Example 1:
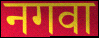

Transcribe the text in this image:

नगवा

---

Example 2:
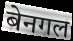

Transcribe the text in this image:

बेनगल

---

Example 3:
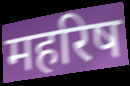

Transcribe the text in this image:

महरिष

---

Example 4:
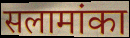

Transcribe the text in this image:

सलामांका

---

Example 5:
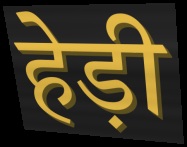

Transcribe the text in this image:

हेड़ी